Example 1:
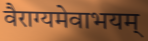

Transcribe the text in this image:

वैराग्यमेवाभयम्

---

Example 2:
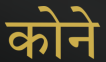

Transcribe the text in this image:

कोने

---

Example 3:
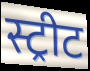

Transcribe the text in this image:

स्ट्रीट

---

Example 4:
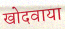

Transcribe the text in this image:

खोदवाया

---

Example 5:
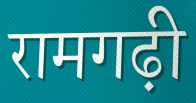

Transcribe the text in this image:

रामगढ़ी